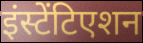
इंस्टेंटिएशन